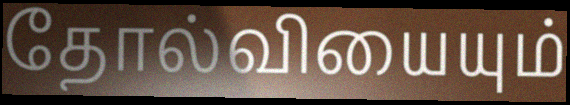
தோல்வியையும்